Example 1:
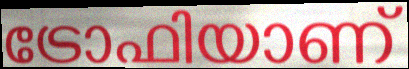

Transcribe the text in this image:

ട്രോഫിയാണ്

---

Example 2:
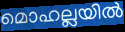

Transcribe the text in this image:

മൊഹല്ലയിൽ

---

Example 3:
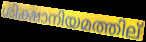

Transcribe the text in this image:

ശിക്ഷാനിയമത്തില്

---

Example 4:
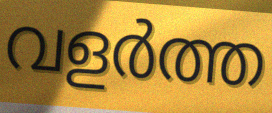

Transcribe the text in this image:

വളർത്ത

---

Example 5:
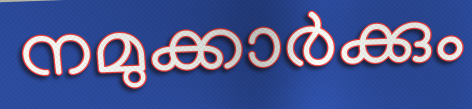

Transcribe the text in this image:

നമുക്കാർക്കും